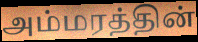
அம்மரத்தின்